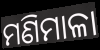
ମଣିମାଳା